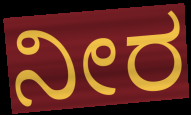
ನೀರ